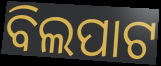
ବିଲପାଟ